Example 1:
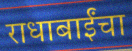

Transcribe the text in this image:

राधाबाईंचा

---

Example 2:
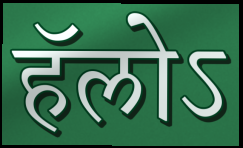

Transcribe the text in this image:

हॅलोऽ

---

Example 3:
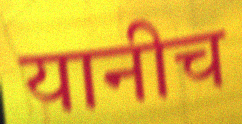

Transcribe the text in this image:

यानीच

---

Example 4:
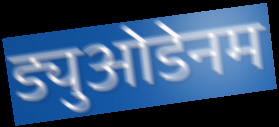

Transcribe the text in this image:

ड्युओडेनम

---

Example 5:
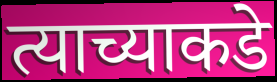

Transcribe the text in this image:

त्याच्याकडे